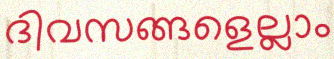
ദിവസങ്ങളെല്ലാം